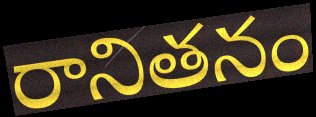
రానితనం